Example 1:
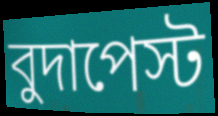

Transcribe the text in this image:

বুদাপেস্ট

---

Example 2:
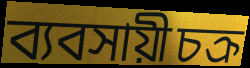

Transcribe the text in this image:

ব্যবসায়ীচক্র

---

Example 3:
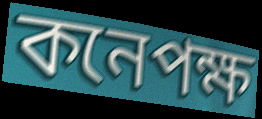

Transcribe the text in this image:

কনেপক্ষ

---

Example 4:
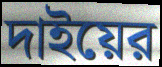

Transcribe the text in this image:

দাইয়ের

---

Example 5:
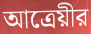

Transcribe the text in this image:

আত্রেয়ীর